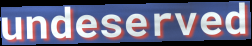
undeserved